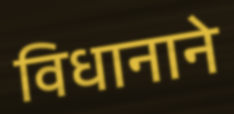
विधानाने